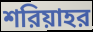
শরিয়াহর